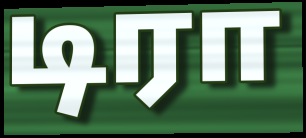
டிரா